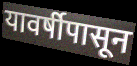
यावर्षीपासून